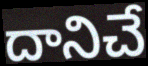
దానిచే